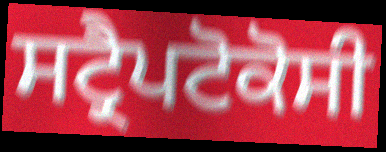
ਸਟ੍ਰੈਪਟੋਕੋਸੀ